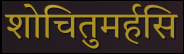
शोचितुमर्हसि